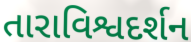
તારાવિશ્વદર્શન